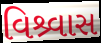
વિશ્ર્વાસ